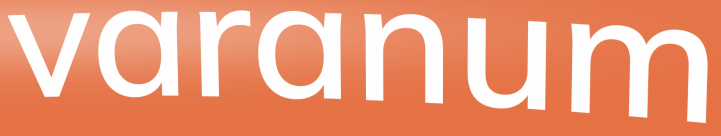
varanum